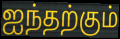
ஐந்தற்கும்